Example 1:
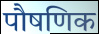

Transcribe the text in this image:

पौषणिक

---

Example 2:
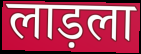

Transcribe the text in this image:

लाड़ला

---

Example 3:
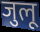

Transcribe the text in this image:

जुलू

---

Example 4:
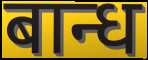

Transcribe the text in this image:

बान्ध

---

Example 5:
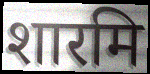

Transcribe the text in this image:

शारमि